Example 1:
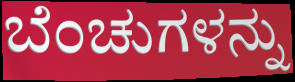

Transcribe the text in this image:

ಬೆಂಚುಗಳನ್ನು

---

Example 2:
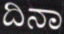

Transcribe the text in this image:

ದಿನಾ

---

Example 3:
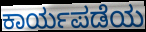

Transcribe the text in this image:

ಕಾರ್ಯಪಡೆಯ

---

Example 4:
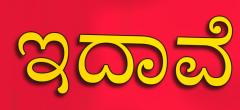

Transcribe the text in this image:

ಇದಾವೆ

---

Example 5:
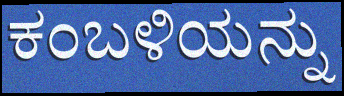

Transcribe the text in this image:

ಕಂಬಳಿಯನ್ನು